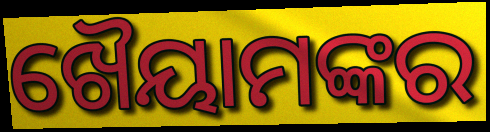
ଖୈୟାମଙ୍କର